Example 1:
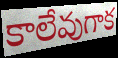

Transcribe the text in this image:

కాలేవుగాక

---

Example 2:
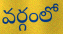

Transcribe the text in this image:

వర్గంలో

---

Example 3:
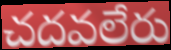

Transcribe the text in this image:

చదవలేరు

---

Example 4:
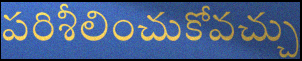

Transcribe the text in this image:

పరిశీలించుకోవచ్చు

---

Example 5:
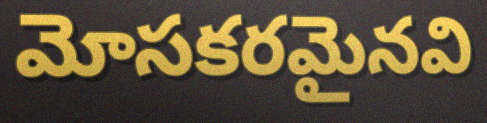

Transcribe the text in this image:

మోసకరమైనవి